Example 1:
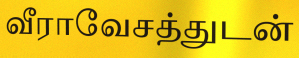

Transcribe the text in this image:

வீராவேசத்துடன்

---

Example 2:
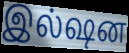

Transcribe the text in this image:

இல்ஷன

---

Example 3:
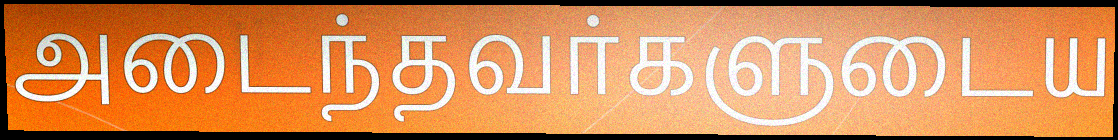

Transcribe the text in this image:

அடைந்தவர்களுடைய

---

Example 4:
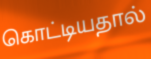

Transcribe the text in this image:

கொட்டியதால்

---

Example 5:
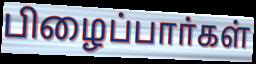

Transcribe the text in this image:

பிழைப்பார்கள்